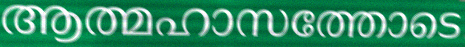
ആത്മഹാസത്തോടെ